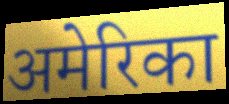
अमेरिका